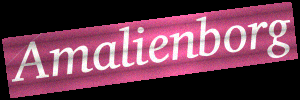
Amalienborg